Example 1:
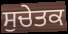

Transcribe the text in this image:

ਸੁਚੇਤਕ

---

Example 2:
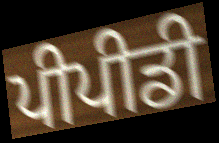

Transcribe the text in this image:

ਪੀਪੀਡੀ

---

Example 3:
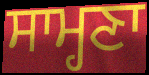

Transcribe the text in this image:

ਸਾਮ੍ਹਣਾ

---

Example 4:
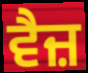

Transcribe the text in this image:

ਵੈਜ਼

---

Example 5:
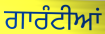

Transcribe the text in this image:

ਗਾਰੰਟੀਆਂ